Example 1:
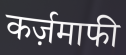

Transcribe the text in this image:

कर्ज़माफी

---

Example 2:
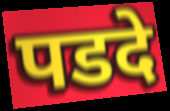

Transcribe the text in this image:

पडदे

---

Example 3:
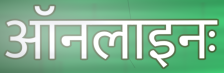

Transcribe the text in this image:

ऑनलाइनः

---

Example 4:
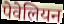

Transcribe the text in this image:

पेवेलियन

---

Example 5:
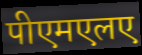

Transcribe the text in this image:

पीएमएलए